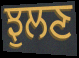
ਝੁਲਣ